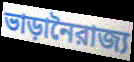
ভাড়ানৈরাজ্য